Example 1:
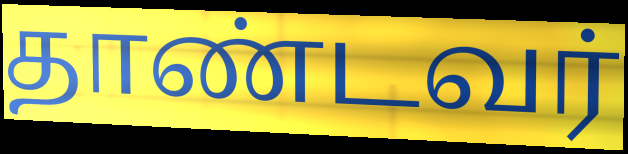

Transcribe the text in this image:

தாண்டவர்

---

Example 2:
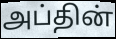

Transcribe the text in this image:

அப்தின்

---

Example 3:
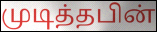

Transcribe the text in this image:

முடித்தபின்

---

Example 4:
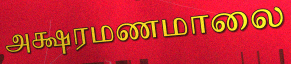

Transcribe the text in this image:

அக்ஷரமணமாலை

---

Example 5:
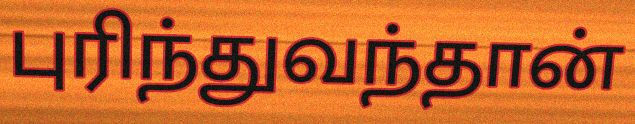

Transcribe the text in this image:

புரிந்துவந்தான்